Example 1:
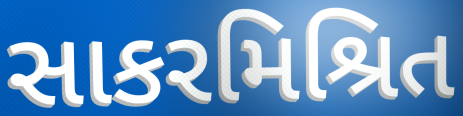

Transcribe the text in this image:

સાકરમિશ્રિત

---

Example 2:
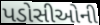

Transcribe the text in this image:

પડોસીઓની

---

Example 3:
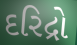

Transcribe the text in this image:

દરિદ્રો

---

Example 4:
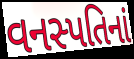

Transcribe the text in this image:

વનસ્પતિનાં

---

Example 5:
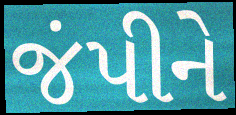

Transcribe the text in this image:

જંપીને